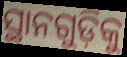
ସ୍ଥାନଗୁଡ଼ିକୁ